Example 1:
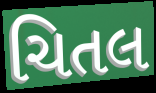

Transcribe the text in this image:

ચિતલ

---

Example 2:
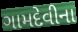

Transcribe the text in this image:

ગામદેવીના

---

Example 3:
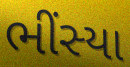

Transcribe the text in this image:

ભીંસ્યા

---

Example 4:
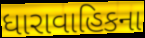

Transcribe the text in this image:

ધારાવાહિકના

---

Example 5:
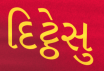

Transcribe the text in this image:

દિટ્ઠેસુ